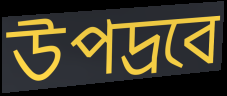
উপদ্রবে